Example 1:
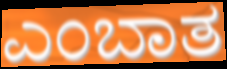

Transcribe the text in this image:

ಎಂಬಾತ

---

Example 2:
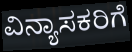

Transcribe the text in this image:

ವಿನ್ಯಾಸಕರಿಗೆ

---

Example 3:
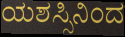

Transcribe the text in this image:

ಯಶಸ್ಸಿನಿಂದ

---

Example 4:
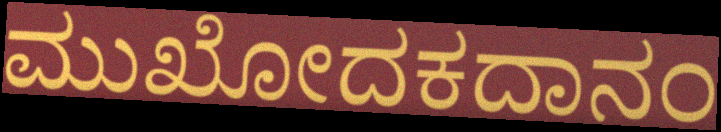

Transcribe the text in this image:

ಮುಖೋದಕದಾನಂ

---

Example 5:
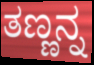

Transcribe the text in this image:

ತಣ್ಣನ್ನ